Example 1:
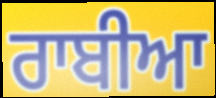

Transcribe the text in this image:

ਰਾਬੀਆ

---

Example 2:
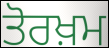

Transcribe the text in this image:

ਤੋਰਖ਼ਮ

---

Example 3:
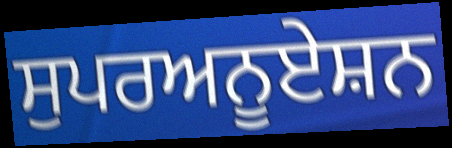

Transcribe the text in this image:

ਸੁਪਰਅਨੂਏਸ਼ਨ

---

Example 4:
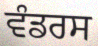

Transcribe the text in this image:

ਵੰਡਰਸ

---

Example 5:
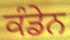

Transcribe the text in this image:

ਕੰਡੇਨ